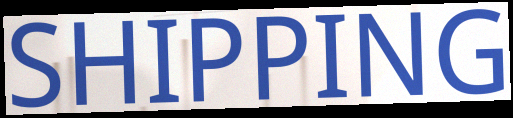
SHIPPING